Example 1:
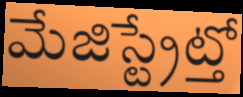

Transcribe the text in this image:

మేజిస్ట్రేట్తో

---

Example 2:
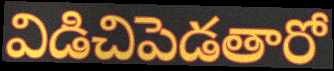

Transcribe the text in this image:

విడిచిపెడతారో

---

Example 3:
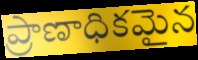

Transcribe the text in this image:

ప్రాణాధికమైన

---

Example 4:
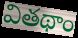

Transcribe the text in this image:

వితథాం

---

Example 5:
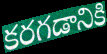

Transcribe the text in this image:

కరగడానికి